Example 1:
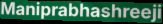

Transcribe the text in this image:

Maniprabhashreeji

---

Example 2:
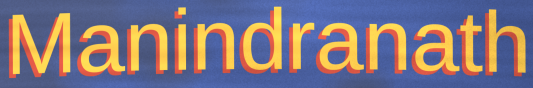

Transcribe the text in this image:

Manindranath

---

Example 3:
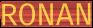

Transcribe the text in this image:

RONAN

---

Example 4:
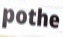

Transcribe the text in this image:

pothe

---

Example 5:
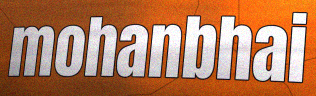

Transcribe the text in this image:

mohanbhai